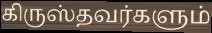
கிருஸ்தவர்களும்